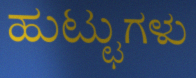
ಹುಟ್ಟುಗಳು